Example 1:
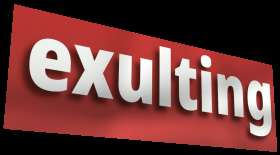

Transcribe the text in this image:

exulting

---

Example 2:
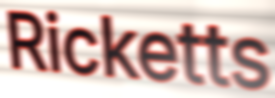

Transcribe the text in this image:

Ricketts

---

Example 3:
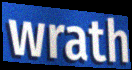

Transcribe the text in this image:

wrath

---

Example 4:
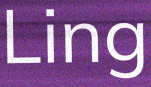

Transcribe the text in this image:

Ling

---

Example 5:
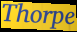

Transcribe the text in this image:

Thorpe